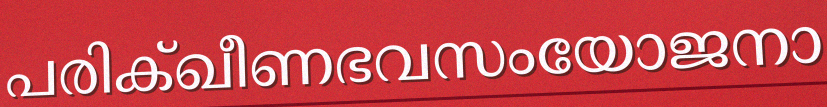
പരിക്ഖീണഭവസംയോജനാ